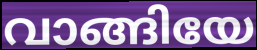
വാങ്ങിയേ